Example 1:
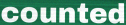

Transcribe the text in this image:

counted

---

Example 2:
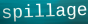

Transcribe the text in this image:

spillage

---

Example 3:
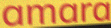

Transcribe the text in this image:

amara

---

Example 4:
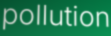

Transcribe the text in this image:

pollution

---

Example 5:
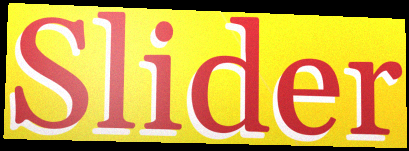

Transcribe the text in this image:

Slider